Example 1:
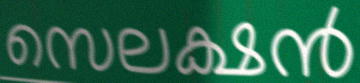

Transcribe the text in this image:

സെലക്ഷൻ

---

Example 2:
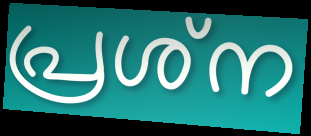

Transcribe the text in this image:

പ്രശ്‌ന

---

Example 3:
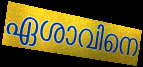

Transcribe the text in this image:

ഏശാവിനെ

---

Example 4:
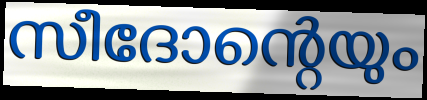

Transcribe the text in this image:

സീദോന്റെയും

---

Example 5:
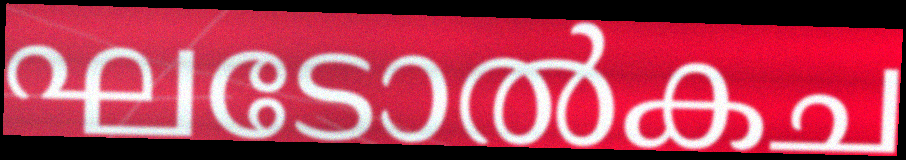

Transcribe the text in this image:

ഘടോൽകച